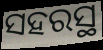
ସହରସ୍ଥ